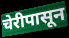
चेरीपासून